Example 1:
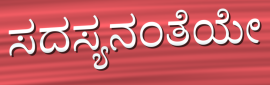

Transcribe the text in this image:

ಸದಸ್ಯನಂತೆಯೇ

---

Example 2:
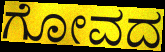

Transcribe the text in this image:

ಗೋವದ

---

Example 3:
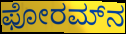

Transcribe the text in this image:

ಫೋರಮ್‌ನ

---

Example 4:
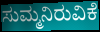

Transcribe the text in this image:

ಸುಮ್ಮನಿರುವಿಕೆ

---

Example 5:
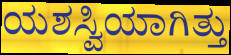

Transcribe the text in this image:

ಯಶಸ್ವಿಯಾಗಿತ್ತು